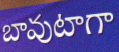
బావుటాగా